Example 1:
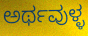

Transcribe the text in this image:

ಅರ್ಥವುಳ್ಳ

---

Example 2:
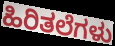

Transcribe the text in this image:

ಹಿರಿತಲೆಗಳು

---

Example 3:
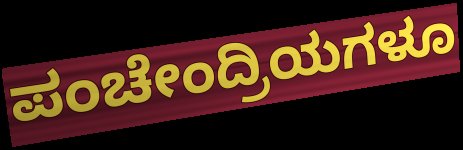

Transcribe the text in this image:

ಪಂಚೇಂದ್ರಿಯಗಳೂ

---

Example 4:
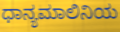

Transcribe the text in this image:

ಧಾನ್ಯಮಾಲಿನಿಯ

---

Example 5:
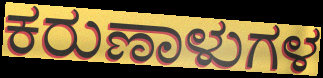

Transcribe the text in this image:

ಕರುಣಾಳುಗಳ